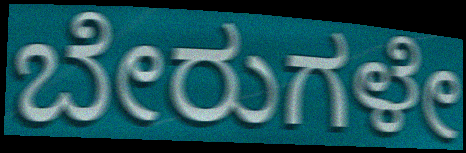
ಬೇರುಗಳೇ